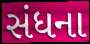
સંધના